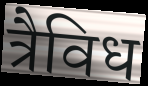
त्रैविध